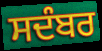
ਸਦੰਬਰ